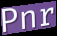
Pnr